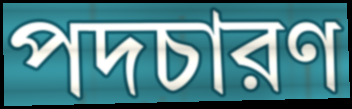
পদচারণ